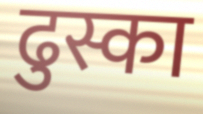
ढुस्का